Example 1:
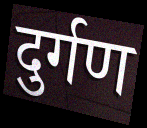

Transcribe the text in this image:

दुर्गण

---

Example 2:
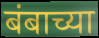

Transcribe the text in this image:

बंबाच्या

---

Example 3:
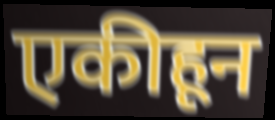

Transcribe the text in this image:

एकीहून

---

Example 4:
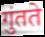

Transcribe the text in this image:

गुंतते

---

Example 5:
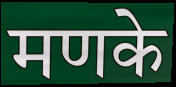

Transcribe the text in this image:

मणके